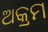
ଅକ୍ରମ